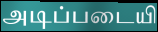
அடிப்படையி